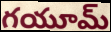
గయూమ్